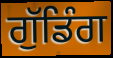
ਗੁੱਡਿੰਗ